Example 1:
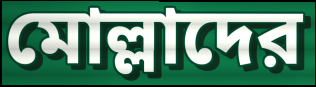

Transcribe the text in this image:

মোল্লাদের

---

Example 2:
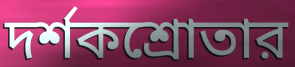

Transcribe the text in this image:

দর্শকশ্রোতার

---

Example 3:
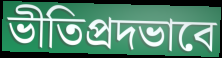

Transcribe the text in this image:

ভীতিপ্রদভাবে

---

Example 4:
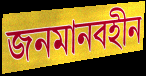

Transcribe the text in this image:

জনমানবহীন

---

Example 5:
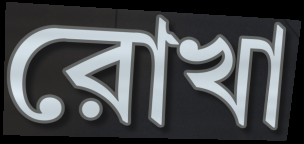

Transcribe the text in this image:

রোখা